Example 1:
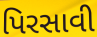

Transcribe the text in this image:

પિરસાવી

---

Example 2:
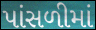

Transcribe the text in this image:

પાંસળીમાં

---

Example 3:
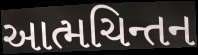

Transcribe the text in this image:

આત્મચિન્તન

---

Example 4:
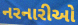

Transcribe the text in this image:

નરનારીઓ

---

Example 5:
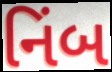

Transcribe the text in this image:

નિંબ